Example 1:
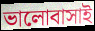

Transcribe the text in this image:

ভালোবাসাই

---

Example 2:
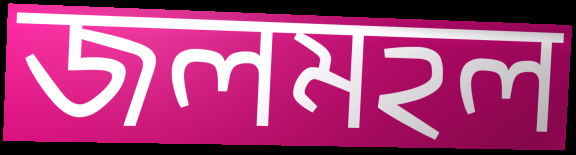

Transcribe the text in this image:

জলমহল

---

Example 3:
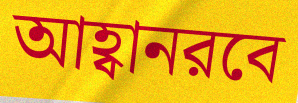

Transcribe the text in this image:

আহ্বানরবে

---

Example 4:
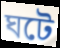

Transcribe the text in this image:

ঘটে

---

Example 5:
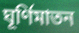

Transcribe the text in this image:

ঘূর্ণিমাতন